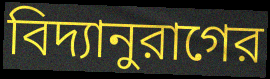
বিদ্যানুরাগের